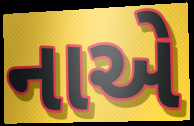
નાએ